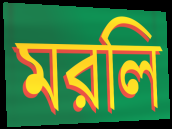
মরলি